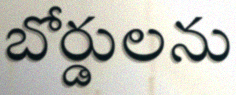
బోర్డులను